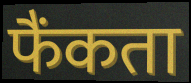
फैंकता